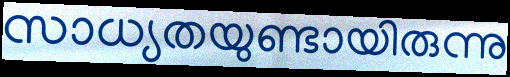
സാധ്യതയുണ്ടായിരുന്നു